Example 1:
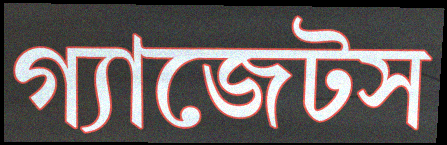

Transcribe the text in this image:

গ্যাজেটস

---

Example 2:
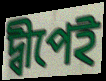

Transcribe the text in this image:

দ্বীপেই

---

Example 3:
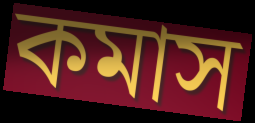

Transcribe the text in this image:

কমাস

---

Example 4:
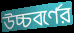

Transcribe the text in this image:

উচ্চবর্ণের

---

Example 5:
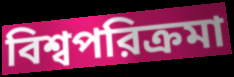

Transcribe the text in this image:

বিশ্বপরিক্রমা